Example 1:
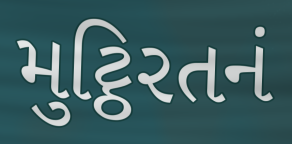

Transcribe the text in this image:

મુટ્ઠિરતનં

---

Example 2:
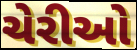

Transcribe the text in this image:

ચેરીઓ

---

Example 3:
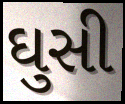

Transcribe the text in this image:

ઘુસી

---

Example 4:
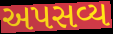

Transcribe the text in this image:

અપસવ્ય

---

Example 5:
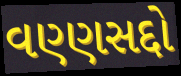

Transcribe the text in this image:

વણ્ણસદ્દો